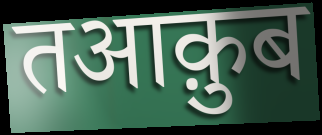
तआक़ुब